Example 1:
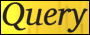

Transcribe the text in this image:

Query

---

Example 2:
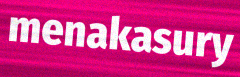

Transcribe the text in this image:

menakasury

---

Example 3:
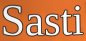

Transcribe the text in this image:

Sasti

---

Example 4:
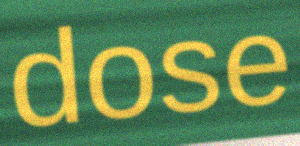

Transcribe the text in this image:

dose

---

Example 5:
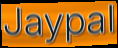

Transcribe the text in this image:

Jaypal